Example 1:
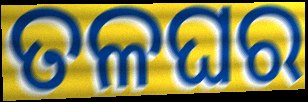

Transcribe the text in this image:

ତଳଘର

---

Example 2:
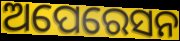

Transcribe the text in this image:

ଅପେରେସନ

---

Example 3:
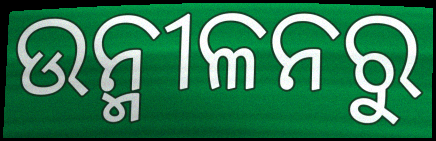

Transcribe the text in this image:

ଉନ୍ମୀଳନରୁ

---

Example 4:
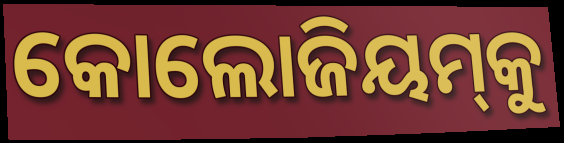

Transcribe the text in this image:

କୋଲୋଜିୟମ୍‍କୁ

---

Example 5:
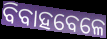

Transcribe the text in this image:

ବିବାହବେଳେ